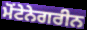
ਮੋਂਟੇਨੇਗਰੀਨ